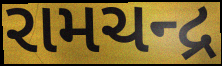
રામચન્દ્ર